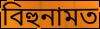
বিহুনামত